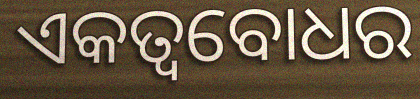
ଏକତ୍ୱବୋଧର